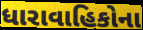
ધારાવાહિકોના